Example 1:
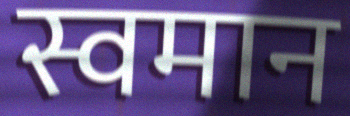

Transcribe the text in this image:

स्वमान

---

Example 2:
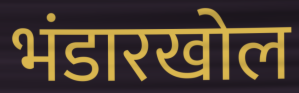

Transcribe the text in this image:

भंडारखोल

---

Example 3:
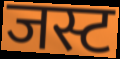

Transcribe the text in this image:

जस्ट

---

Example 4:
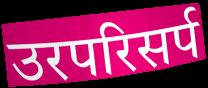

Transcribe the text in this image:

उरपरिसर्प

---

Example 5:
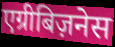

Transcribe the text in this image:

एग्रीबिज़नेस